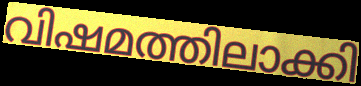
വിഷമത്തിലാക്കി